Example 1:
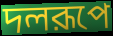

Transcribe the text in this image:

দলরূপে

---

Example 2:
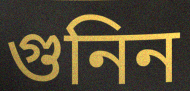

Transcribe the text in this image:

গুনিন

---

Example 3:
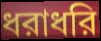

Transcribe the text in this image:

ধরাধরি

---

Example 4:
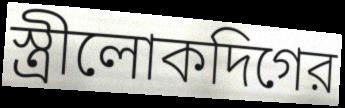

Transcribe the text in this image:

স্ত্রীলোকদিগের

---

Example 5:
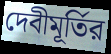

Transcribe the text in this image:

দেবীমূর্তির